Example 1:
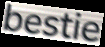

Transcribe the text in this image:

bestie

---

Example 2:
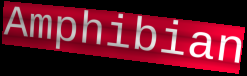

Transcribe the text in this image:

Amphibian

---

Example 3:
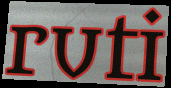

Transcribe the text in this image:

ruti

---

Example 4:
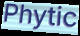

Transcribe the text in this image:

Phytic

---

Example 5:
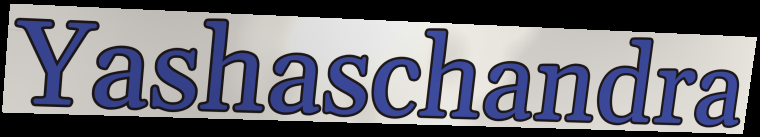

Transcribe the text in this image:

Yashaschandra